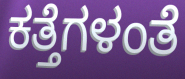
ಕತ್ತೆಗಳಂತೆ